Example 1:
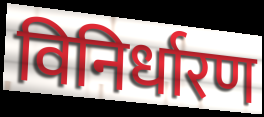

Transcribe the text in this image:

विनिर्धारण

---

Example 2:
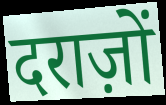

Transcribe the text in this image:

दराज़ों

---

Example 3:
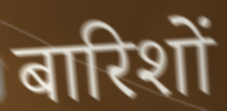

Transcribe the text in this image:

बारिशों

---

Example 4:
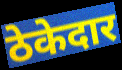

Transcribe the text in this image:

ठेकेदार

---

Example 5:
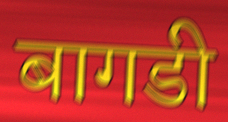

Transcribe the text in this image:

बागडी